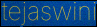
tejaswini